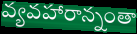
వ్యవహారాన్నంతా